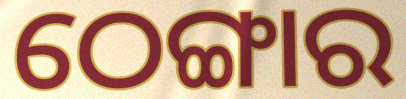
ଠେଙ୍ଗାର